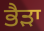
ਭੈੜਾ